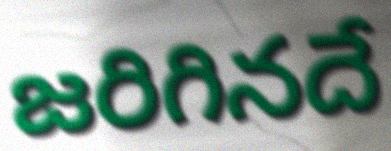
జరిగినదే